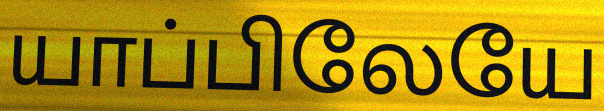
யாப்பிலேயே